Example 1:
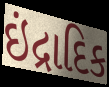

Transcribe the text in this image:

ઇંદ્રાદિક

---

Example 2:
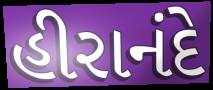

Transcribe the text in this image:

હીરાનંદે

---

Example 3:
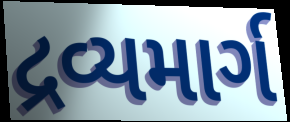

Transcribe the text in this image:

દ્રવ્યમાર્ગ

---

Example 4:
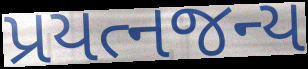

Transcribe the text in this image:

પ્રયત્નજન્ય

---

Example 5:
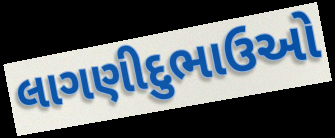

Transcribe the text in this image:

લાગણીદુભાઉઓ